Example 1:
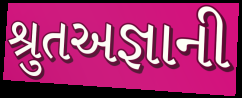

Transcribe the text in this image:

શ્રુતઅજ્ઞાની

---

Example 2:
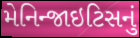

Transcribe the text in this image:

મેનિન્જાઇટિસનું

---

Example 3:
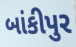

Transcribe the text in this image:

બાંકીપુર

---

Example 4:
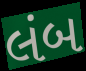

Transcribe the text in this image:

લંબ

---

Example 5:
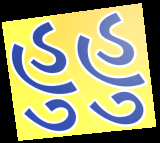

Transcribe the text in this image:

હુહુ